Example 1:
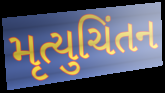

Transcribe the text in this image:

મૃત્યુચિંતન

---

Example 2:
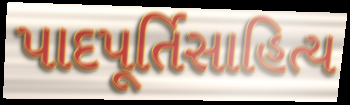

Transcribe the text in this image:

પાદપૂર્તિસાહિત્ય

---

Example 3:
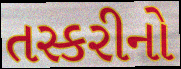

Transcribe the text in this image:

તસ્કરીનો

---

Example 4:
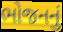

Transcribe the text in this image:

ભોજનનું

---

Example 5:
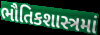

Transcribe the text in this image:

ભૌતિકશાસ્ત્રમાં